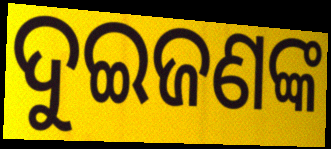
ଦୁଇଜଣଙ୍କ